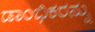
ಡಾಂಭಿಕರನ್ನು